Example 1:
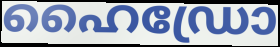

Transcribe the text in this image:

ഹൈഡ്രോ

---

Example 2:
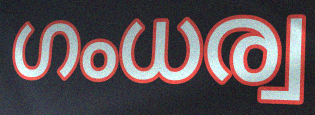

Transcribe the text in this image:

ഗംധര്വ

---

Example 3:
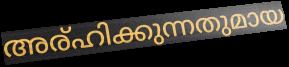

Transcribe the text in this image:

അര്ഹിക്കുന്നതുമായ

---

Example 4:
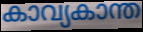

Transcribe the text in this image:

കാവ്യകാന്ത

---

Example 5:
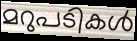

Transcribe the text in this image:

മറുപടികൾ